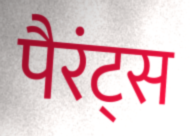
पैरंट्स